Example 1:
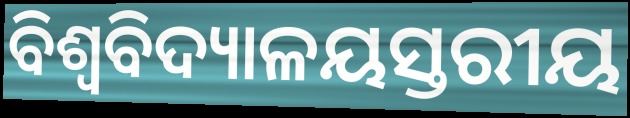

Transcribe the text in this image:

ବିଶ୍ଵବିଦ୍ୟାଳୟସ୍ତରୀୟ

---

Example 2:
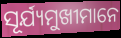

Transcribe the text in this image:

ସୂର୍ଯ୍ୟମୁଖୀମାନେ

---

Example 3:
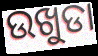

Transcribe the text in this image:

ଉଖୁଡା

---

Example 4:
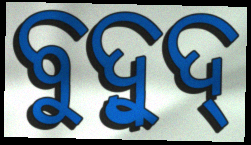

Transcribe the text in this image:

ବୁଦ୍ବୁଦ୍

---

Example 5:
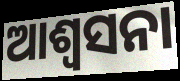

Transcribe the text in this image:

ଆଶ୍ୱସନା